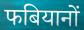
फबियानों